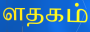
ளதகம்